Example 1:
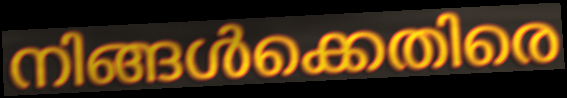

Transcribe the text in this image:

നിങ്ങൾക്കെതിരെ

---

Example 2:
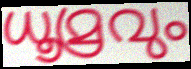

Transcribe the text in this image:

ധൂമ്രവും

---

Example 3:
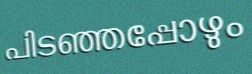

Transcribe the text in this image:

പിടഞ്ഞപ്പോഴും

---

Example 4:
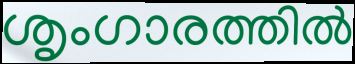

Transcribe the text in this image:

ശൃംഗാരത്തിൽ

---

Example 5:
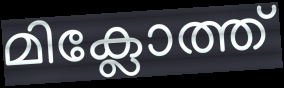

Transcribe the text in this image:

മിക്ലോത്ത്